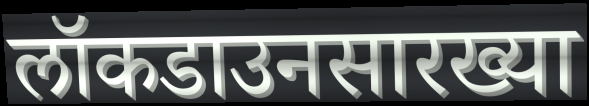
लॉकडाउनसारख्या